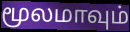
மூலமாவும்